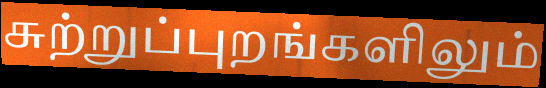
சுற்றுப்புறங்களிலும்